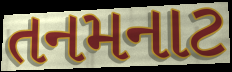
તનમનાટ